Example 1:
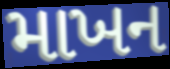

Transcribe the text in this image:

માખન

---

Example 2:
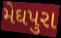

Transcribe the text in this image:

મેઘપુરા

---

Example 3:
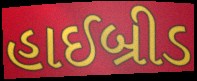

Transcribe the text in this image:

હાઈબ્રીડ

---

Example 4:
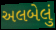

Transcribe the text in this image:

અલબેલું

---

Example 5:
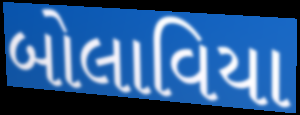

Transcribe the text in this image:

બોલાવિયા